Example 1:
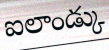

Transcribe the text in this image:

ఐలాండ్కు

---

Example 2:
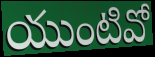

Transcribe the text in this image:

యుంటివో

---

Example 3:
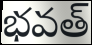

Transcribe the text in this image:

భవత్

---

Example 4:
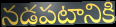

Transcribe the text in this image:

నడపటానికి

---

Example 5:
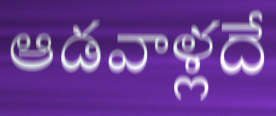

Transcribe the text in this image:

ఆడవాళ్లదే